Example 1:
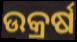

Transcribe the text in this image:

ଉକ୍ରର୍ଷ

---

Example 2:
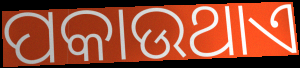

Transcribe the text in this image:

ପକାଉଥାଏ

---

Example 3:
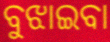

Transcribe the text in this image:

ବୁଝାଇବା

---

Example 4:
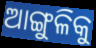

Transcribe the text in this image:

ଆଙ୍ଗୁଳିକୁ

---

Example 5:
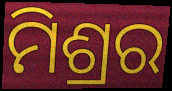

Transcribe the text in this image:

ମିଶ୍ରର